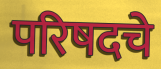
परिषदचे